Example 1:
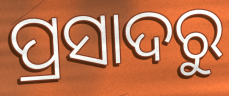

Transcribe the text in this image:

ପ୍ରସାଦରୁ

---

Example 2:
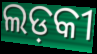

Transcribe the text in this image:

ଲଡ଼କୀ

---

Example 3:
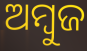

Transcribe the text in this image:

ଅମ୍ବୁଜ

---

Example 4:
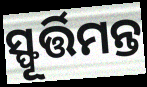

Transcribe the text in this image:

ସ୍ଫୂର୍ତ୍ତିମନ୍ତ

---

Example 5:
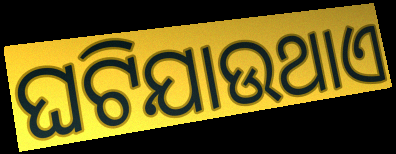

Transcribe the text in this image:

ଘଟିଯାଉଥାଏ